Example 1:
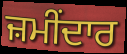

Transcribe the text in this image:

ਜ਼ਮੀਂਦਾਰ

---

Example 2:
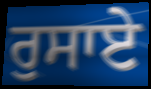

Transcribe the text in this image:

ਰੁਸਾਏ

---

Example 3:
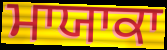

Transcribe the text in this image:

ਮਾਯਾਕਾ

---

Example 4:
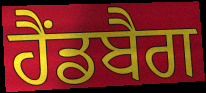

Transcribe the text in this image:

ਹੈਂਡਬੈਗ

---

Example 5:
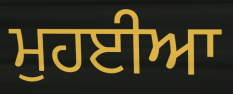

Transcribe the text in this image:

ਮੁਹਈਆ